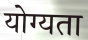
योग्‍यता